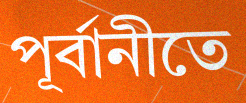
পূর্বানীতে